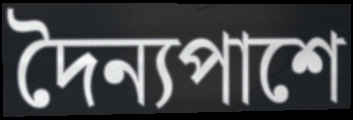
দৈন্যপাশে